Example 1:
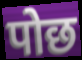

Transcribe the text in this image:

पोछ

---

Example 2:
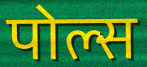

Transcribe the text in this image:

पोल्‍स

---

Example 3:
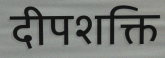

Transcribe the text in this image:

दीपशक्ति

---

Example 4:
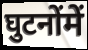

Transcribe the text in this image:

घुटनोंमें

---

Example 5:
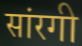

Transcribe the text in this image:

सांरगी